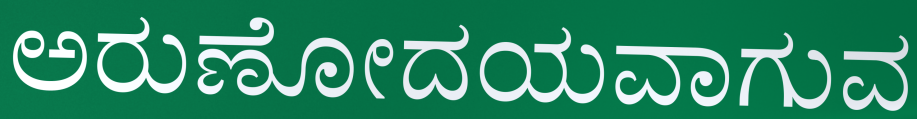
ಅರುಣೋದಯವಾಗುವ